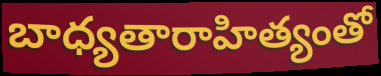
బాధ్యతారాహిత్యంతో